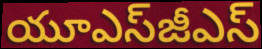
యూఎస్‌జీఎస్